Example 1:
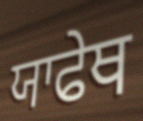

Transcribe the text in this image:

ਯਾਫੇਥ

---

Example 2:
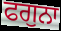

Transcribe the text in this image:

ਫਗੁਨਾ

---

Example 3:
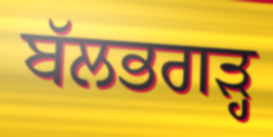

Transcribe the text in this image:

ਬੱਲਭਗੜ੍ਹ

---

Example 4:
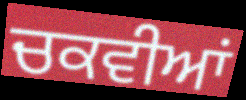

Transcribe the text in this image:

ਚਕਵੀਆਂ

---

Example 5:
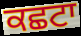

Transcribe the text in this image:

ਕਛਟਾ